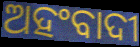
ଅହଂବାଦୀ